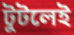
টুটলেই